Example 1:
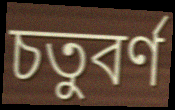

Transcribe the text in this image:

চতুবৰ্ণ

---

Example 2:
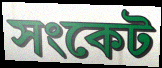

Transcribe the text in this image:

সংকেট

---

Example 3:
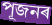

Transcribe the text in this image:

পূজনৰ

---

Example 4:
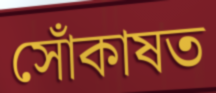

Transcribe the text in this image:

সোঁকাষত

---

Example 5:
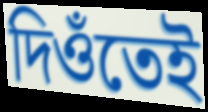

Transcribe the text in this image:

দিওঁতেই